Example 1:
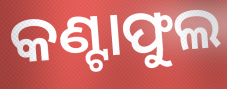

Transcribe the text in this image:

କଣ୍ଟାଫୁଲ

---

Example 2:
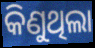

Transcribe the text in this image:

କିଣୁଥିଲା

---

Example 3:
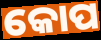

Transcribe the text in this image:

କୋପ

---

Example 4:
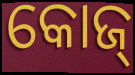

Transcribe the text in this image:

କୋଜ୍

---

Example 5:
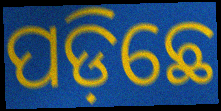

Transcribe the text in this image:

ପଡ଼ିଛେ